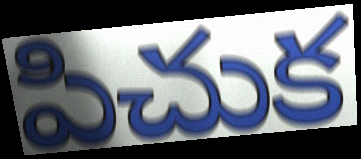
పిచుక